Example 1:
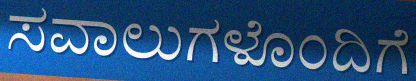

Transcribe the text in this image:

ಸವಾಲುಗಳೊಂದಿಗೆ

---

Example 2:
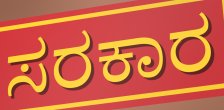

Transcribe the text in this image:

ಸರಕಾರ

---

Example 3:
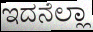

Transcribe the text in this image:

ಇದನೆಲ್ಲಾ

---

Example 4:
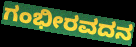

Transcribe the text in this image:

ಗಂಭೀರವದನ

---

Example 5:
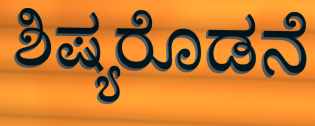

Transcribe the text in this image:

ಶಿಷ್ಯರೊಡನೆ